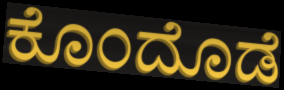
ಕೊಂದೊಡೆ